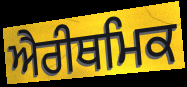
ਐਰੀਥਮਿਕ